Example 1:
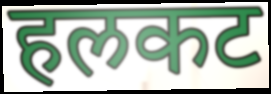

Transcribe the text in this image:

हलकट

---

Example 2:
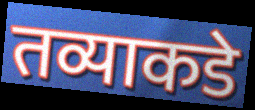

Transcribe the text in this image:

तव्याकडे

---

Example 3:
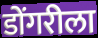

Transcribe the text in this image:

डोंगरीला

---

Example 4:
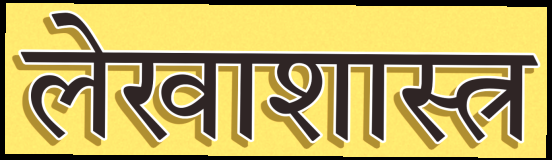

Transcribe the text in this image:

लेखाशास्त्र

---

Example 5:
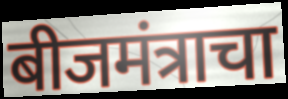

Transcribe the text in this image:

बीजमंत्राचा